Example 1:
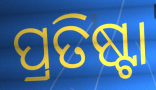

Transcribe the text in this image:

ପ୍ରତିଷ୍ଟା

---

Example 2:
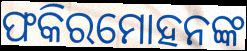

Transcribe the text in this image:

ଫକିରମୋହନଙ୍କ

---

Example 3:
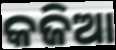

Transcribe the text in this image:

କଜିଆ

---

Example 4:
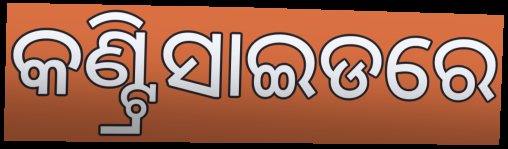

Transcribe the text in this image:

କଣ୍ଟ୍ରିସାଇଡରେ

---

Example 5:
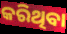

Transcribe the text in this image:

କରିଥିବା